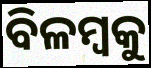
ବିଳମ୍ୱକୁ